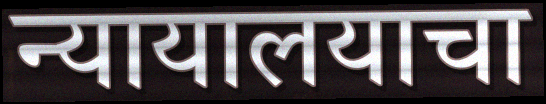
न्यायालयाचा